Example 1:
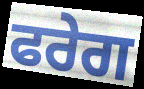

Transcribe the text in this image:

ਫਰੇਗ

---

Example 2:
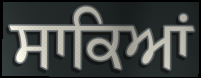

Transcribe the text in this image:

ਸਾਕਿਆਂ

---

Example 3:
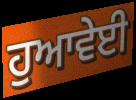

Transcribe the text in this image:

ਹੁਆਵੇਈ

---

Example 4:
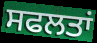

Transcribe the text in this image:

ਸਫਲਤਾਂ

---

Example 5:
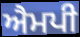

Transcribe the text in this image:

ਐਮਪੀ